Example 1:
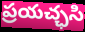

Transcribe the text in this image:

ప్రయచ్ఛసి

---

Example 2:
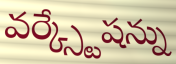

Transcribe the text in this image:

వర్క్స్టేషన్ను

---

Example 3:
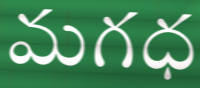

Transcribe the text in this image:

మగధ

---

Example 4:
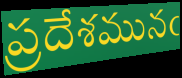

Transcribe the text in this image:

ప్రదేశమునఁ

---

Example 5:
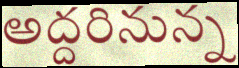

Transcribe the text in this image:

అద్దరినున్న